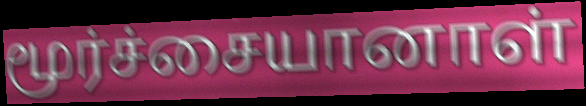
மூர்ச்சையானாள்